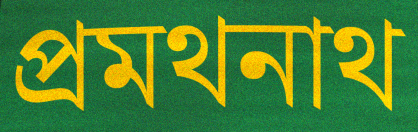
প্রমথনাথ